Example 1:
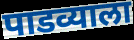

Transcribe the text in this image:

पाडव्याला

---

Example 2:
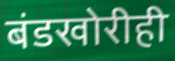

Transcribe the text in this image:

बंडखोरीही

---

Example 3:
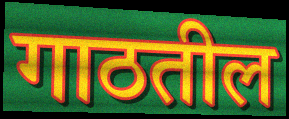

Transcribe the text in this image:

गाठतील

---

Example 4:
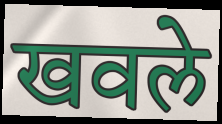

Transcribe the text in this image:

खवले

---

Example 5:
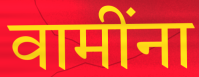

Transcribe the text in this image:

वामींना